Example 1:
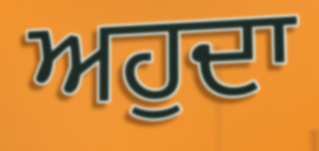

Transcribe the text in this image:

ਅਹੁਦਾ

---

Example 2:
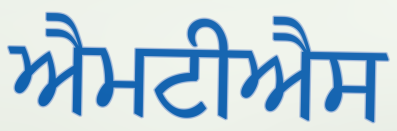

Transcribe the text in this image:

ਐਮਟੀਐਸ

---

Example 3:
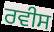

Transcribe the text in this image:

ਰਵੀਸ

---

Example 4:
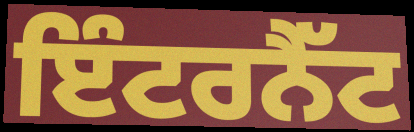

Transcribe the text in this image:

ਇੰਟਰਨੈੱਟ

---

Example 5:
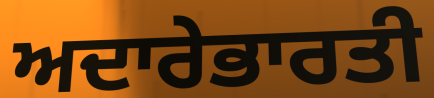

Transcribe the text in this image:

ਅਦਾਰੇਭਾਰਤੀ